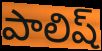
పాలిష్